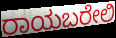
ರಾಯಬರೇಲಿ